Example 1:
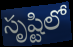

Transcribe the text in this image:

సృష్టిలో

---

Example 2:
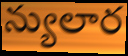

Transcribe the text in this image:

న్యులార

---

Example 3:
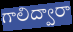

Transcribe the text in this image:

గాలిద్వారా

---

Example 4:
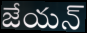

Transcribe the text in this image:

జేయన్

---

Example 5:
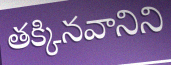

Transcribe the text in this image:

తక్కినవానిని